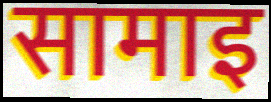
सामाइ